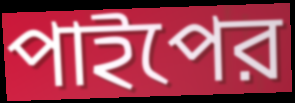
পাইপের